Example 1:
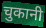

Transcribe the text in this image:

चुकानी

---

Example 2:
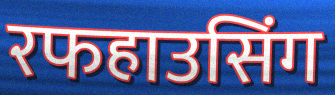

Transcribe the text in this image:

रफहाउसिंग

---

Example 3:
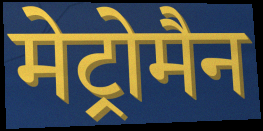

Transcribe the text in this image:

मेट्रोमैन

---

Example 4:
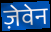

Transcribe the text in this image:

ज़ेवेन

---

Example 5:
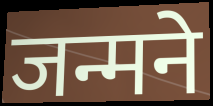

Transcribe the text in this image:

जन्मने